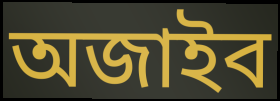
অজাইব